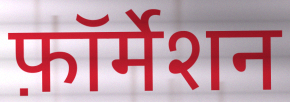
फ़ॉर्मेशन